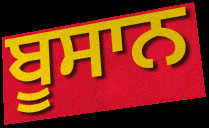
ਬੂਸਾਨ